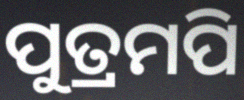
ପୁତ୍ରମପି